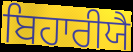
ਬਿਹਾਰੀਯੈ